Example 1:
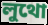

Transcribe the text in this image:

লুথো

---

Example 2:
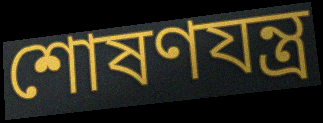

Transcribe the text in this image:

শোষণযন্ত্র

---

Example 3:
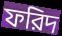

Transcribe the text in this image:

ফরিদ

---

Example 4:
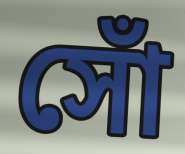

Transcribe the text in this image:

সোঁ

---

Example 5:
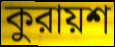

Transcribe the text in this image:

কুরায়শ